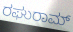
ರಘುರಾಮ್